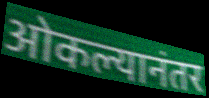
ओकल्यानंतर